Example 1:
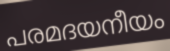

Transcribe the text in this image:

പരമദയനീയം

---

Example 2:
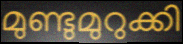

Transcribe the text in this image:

മുണ്ടുമുറുക്കി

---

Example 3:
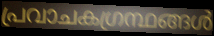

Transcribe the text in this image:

പ്രവാചകഗ്രന്ഥങ്ങൾ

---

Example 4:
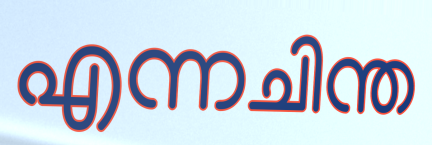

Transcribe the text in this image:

എന്നചിന്ത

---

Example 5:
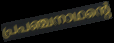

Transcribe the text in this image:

പ്രപഞ്ചനാഥന്റെ